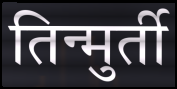
तिन्मुर्ती